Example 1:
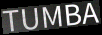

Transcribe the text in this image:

TUMBA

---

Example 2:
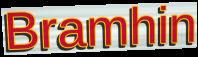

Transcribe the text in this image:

Bramhin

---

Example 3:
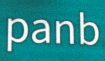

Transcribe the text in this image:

panb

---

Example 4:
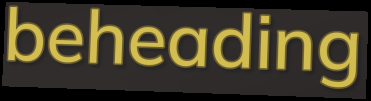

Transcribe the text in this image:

beheading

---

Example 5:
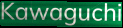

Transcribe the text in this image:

Kawaguchi